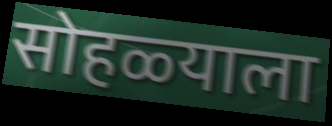
सोहळ्याला